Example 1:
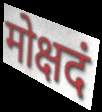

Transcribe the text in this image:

मोक्षदं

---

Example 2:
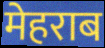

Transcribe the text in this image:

मेहराब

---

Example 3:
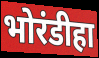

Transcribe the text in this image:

भोरंडीहा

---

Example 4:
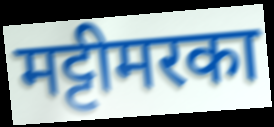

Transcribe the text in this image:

मट्टीमरका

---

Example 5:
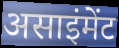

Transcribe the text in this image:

असाइंमेंट